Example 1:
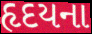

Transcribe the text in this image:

હૃદયના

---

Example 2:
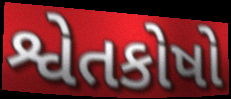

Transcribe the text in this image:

શ્વેતકોષો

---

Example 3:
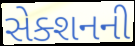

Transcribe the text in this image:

સેક્શનની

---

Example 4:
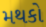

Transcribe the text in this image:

મથકો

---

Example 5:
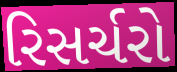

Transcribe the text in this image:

રિસર્ચરો